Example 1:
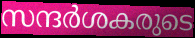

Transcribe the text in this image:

സന്ദർശകരുടെ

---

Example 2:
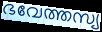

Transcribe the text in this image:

ഭവേത്തസ്യ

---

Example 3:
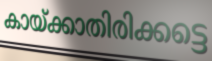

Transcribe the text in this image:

കായ്ക്കാതിരിക്കട്ടെ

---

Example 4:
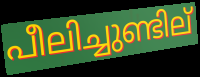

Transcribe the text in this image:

പീലിച്ചുണ്ടില്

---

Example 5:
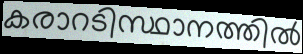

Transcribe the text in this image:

കരാറടിസ്ഥാനത്തിൽ